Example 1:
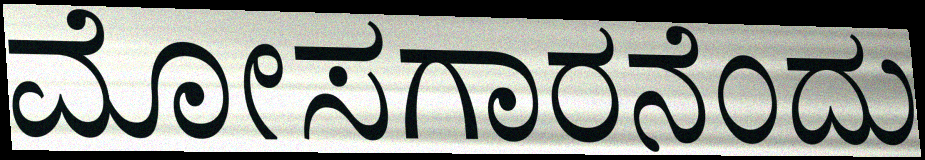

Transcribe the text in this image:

ಮೋಸಗಾರನೆಂದು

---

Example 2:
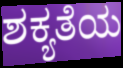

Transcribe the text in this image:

ಶಕ್ಯತೆಯ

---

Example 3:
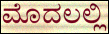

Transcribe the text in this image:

ಮೊದಲಲ್ಲಿ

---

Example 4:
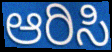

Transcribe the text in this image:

ಆರಿಸಿ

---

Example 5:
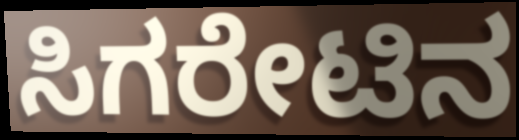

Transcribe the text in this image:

ಸಿಗರೇಟಿನ